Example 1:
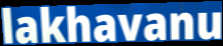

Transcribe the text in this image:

lakhavanu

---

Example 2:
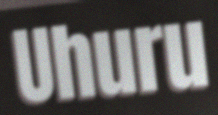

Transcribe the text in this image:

Uhuru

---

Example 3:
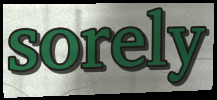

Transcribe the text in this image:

sorely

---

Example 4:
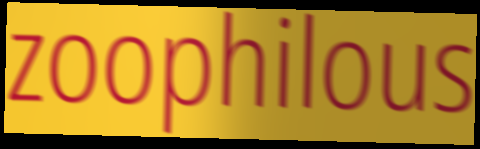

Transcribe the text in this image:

zoophilous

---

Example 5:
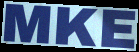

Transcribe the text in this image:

MKE